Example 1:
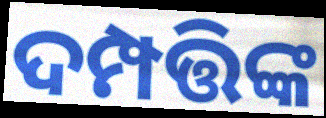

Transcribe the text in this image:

ଦମ୍ପତ୍ତିଙ୍କ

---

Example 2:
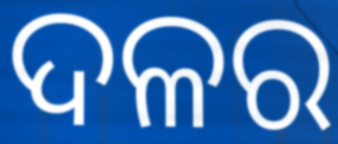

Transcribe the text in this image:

ଦଳର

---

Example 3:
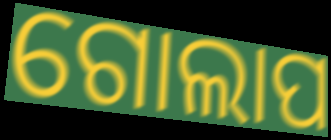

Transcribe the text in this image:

ଗୋଲାପ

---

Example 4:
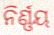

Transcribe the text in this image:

ନିର୍ଣ୍ଣୟ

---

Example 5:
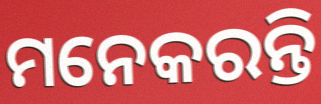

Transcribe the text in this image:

ମନେକରନ୍ତି